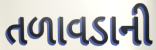
તળાવડાની